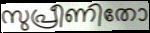
സുപ്രീണിതോ